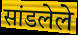
सांडलेले